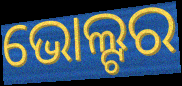
ଭୋଲ୍ଟର